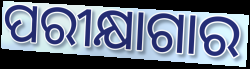
ପରୀକ୍ଷାଗାର